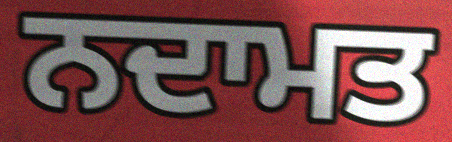
ਨਦਾਮਤ